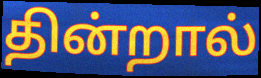
தின்றால்